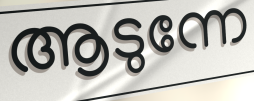
ആടുന്നേ